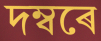
দম্বৰে